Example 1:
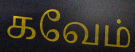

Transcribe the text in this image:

கவேம்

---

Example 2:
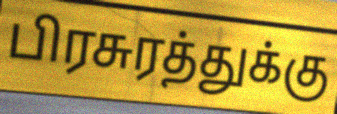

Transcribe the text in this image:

பிரசுரத்துக்கு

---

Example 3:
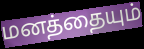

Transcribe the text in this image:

மனத்தையும்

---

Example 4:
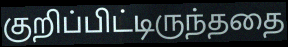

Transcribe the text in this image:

குறிப்பிட்டிருந்ததை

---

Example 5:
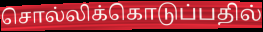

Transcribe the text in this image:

சொல்லிக்கொடுப்பதில்